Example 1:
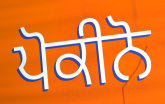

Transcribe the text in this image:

ਪੋਕੀਨੋ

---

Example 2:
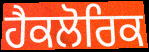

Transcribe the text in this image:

ਹੈਕਲੋਰਿਕ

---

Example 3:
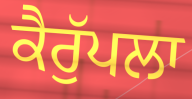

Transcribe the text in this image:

ਕੈਰੁੱਪਲਾ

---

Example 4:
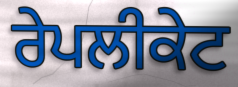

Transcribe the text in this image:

ਰੇਪਲੀਕੇਟ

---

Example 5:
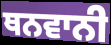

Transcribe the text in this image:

ਥਨਵਾਨੀ